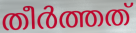
തീർത്തത്